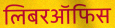
लिबरऑफिस